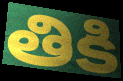
తికి